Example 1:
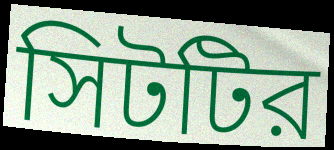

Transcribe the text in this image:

সিটটির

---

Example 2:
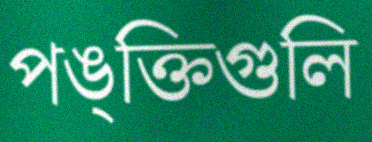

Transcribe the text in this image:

পঙ্‌ক্তিগুলি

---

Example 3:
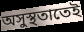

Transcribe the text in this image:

অসুস্থতাতেই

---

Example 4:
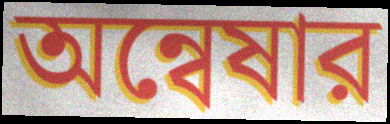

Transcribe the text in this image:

অন্বেষার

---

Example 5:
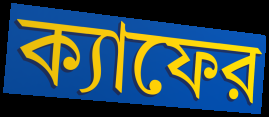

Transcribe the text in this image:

ক্যাফের